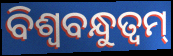
ବିଶ୍ଵବନ୍ଧୁତ୍ଵମ୍